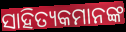
ସାହିତ୍ୟକମାନଙ୍କ